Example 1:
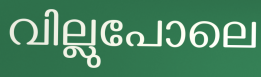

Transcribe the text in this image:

വില്ലുപോലെ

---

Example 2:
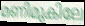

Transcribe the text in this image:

മണിമുകിലേ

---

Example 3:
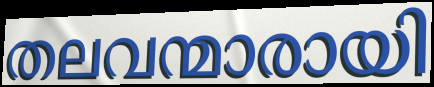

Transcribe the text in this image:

തലവന്മാരായി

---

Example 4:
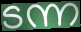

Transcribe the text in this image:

ടന്ന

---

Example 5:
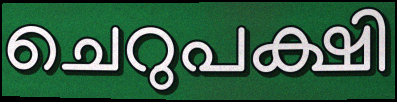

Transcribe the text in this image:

ചെറുപക്ഷി